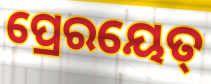
ପ୍ରେରୟେତ୍